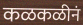
कळकळीनं